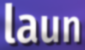
laun